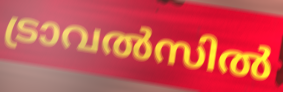
ട്രാവൽസിൽ